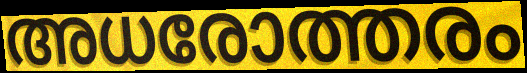
അധരോത്തരം